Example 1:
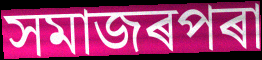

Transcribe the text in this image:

সমাজৰপৰা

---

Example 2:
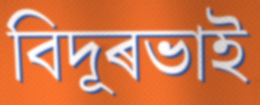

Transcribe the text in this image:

বিদূৰভাই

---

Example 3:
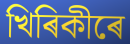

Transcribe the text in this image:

খিৰিকীৰে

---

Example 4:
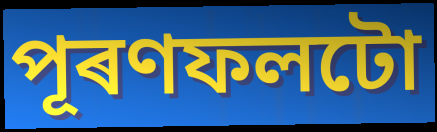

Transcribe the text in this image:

পূৰণফলটো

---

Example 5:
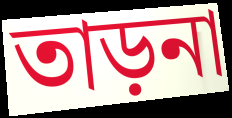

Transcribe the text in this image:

তাড়না